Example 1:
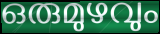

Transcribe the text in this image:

ഒരുമുഴവും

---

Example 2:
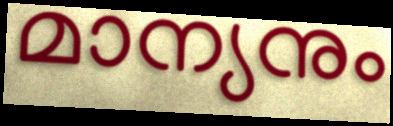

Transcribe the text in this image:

മാന്യനും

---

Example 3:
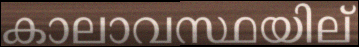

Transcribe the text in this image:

കാലാവസ്ഥയില്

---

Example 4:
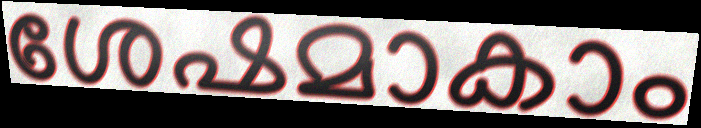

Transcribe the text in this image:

ശേഷമാകാം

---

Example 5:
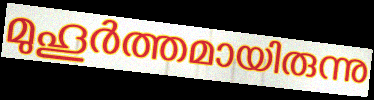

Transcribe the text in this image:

മുഹൂർത്തമായിരുന്നു